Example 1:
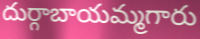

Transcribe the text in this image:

దుర్గాబాయమ్మగారు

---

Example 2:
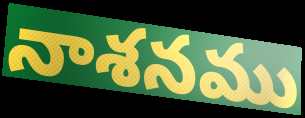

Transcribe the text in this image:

నాశనము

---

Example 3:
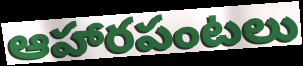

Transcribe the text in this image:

ఆహారపంటలు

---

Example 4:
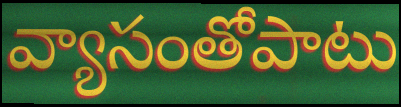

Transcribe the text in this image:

వ్యాసంతోపాటు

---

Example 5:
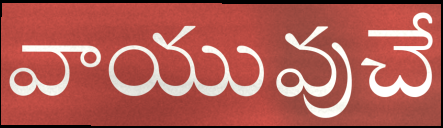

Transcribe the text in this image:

వాయువుచే